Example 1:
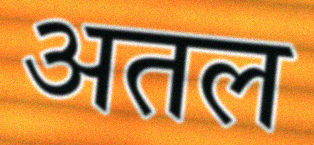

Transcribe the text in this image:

अतल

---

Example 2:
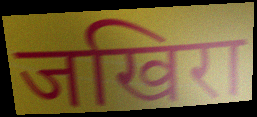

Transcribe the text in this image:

जखिरा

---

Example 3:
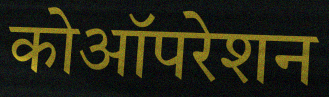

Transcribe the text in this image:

कोऑपरेशन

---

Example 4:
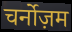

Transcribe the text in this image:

चर्नोज़म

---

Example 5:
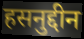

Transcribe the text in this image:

हसनुद्दीन